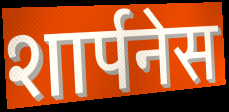
शार्पनेस